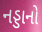
નડ્ડાનો